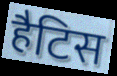
हैटिस